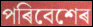
পৰিবেশেৰ